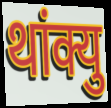
थांक्यु